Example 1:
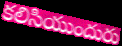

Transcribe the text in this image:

కలిసియుందురు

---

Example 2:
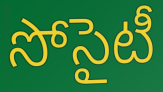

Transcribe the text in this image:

సోసైటీ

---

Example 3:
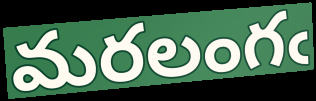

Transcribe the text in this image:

మరలంగఁ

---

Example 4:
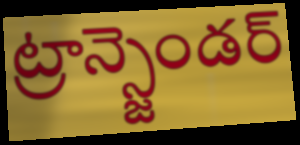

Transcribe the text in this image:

ట్రాన్స్జెండర్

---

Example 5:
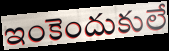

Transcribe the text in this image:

ఇంకెందుకులే